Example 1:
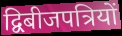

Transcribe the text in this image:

द्विबीजपत्रियों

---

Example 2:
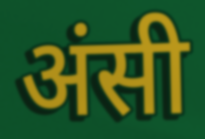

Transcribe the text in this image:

अंसी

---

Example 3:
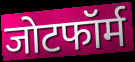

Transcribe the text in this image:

जोटफॉर्म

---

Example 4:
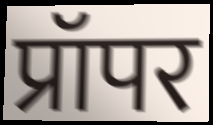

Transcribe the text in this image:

प्रॉपर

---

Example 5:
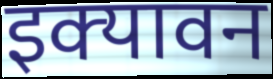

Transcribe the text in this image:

इक्‍यावन